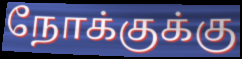
நோக்குக்கு